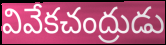
వివేకచంద్రుడు